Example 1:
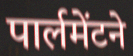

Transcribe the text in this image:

पार्लमेंटने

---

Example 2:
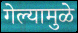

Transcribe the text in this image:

गेल्यामुळे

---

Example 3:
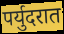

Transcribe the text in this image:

पर्युदरात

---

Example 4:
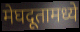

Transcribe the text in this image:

मेघदूतामध्ये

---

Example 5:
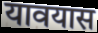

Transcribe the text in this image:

यावयास